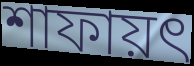
শাফায়ৎ